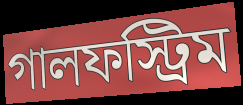
গালফস্ট্রিম